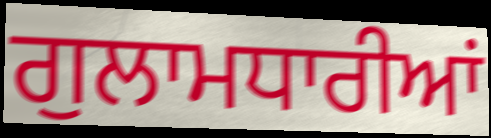
ਗੁਲਾਮਧਾਰੀਆਂ